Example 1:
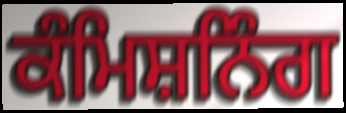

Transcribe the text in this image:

ਕੰਮਿਸ਼ਨਿੰਗ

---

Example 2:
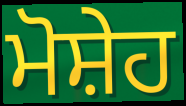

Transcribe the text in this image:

ਮੋਸ਼ੇਹ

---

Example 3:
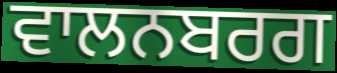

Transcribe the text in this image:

ਵਾਲਨਬਰਗ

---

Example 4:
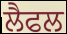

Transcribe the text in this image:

ਲੈਫਲ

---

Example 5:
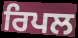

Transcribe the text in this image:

ਰਿਪਲ